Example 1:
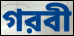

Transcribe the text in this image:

গরবী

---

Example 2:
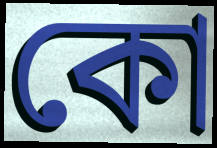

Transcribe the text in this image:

কো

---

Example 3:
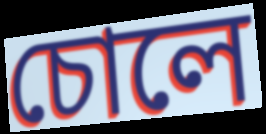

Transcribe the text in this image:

চোলে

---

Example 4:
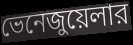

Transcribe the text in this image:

ভেনেজুয়েলার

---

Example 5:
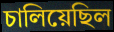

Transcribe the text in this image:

চালিয়েছিল